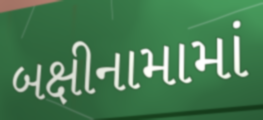
બક્ષીનામામાં